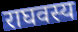
राघवस्य